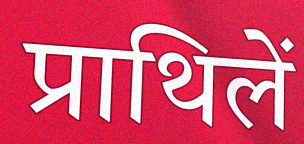
प्राथिलें